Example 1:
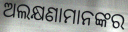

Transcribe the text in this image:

ଅଲକ୍ଷଣାମାନଙ୍କର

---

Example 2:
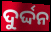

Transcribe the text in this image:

ଦୁର୍ଦ୍ଦନ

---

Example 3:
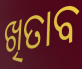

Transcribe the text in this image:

ଖିତାବ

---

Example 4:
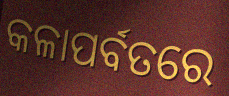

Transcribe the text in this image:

କଳାପର୍ବତରେ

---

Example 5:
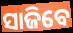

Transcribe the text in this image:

ସାଜିବେ